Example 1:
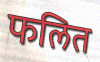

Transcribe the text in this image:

फलित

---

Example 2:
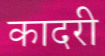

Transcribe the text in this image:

कादरी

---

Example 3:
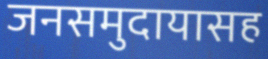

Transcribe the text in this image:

जनसमुदायासह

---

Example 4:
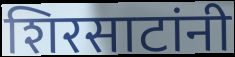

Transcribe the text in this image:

शिरसाटांनी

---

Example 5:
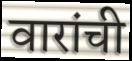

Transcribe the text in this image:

वारांची